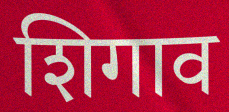
शिगाव